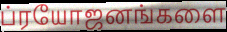
ப்ரயோஜனங்களை